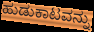
ಹುಡುಕಾಟವನ್ನು